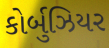
કોર્બુઝિયર